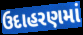
ઉદાહરણમાં